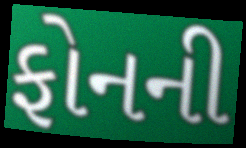
ફોનની